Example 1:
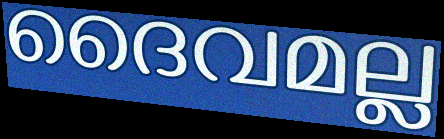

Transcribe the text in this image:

ദൈവമല്ല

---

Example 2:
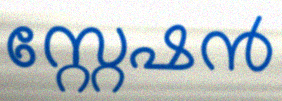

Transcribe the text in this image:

സ്റ്റേഷൻ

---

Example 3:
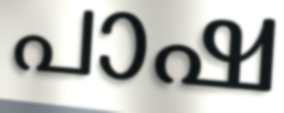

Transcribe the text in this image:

പാഷ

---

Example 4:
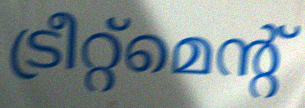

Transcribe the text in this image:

ട്രീറ്റ്മെന്റ്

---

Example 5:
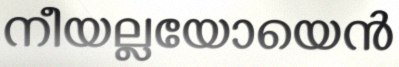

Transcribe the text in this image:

നീയല്ലയോയെൻ